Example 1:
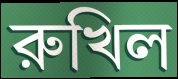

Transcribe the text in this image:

রুখিল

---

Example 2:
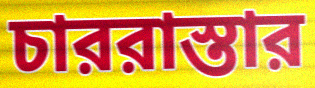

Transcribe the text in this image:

চাররাস্তার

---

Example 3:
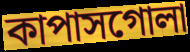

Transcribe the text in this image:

কাপাসগোলা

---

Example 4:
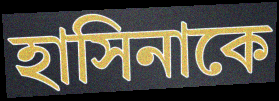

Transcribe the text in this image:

হাসিনাকে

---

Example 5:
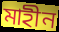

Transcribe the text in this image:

মাহীন